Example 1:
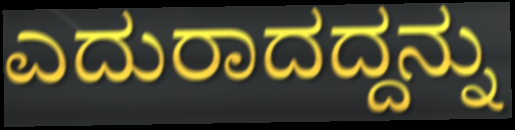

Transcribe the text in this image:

ಎದುರಾದದ್ದನ್ನು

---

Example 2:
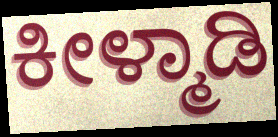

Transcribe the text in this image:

ಕೀಳ್ಮಾಡಿ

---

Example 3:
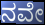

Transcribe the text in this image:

ನವೇ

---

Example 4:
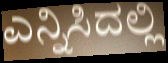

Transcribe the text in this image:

ಎನ್ನಿಸಿದಲ್ಲಿ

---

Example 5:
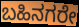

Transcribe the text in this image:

ಬಹಿನಗರೇ